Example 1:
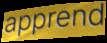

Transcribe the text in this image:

apprend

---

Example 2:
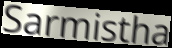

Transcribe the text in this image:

Sarmistha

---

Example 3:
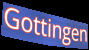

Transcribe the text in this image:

Gottingen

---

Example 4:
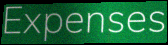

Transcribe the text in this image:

Expenses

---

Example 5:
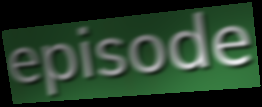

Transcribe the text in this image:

episode